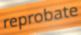
reprobate